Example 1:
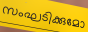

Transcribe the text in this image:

സംഘടിക്കുമോ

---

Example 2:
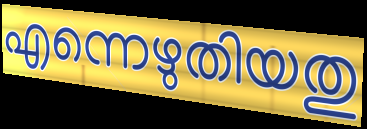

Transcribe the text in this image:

എന്നെഴുതിയതു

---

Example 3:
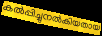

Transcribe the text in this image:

കൽപ്പിച്ചുനൽകിയതായ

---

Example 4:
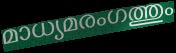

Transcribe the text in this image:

മാധ്യമരംഗത്തും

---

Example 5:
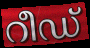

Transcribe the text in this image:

റീഡ്